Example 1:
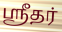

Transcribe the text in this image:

ஸ்ரீதர்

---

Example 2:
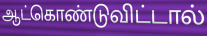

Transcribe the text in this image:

ஆட்கொண்டுவிட்டால்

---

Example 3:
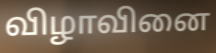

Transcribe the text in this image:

விழாவினை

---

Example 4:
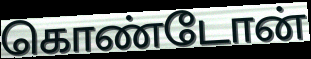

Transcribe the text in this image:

கொண்டோன்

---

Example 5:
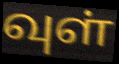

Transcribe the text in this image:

வுள்